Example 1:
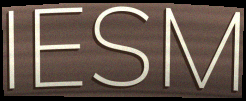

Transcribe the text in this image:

IESM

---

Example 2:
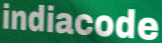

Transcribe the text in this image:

indiacode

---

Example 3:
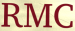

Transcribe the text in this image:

RMC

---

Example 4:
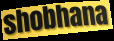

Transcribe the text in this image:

shobhana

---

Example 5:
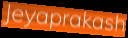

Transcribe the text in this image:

Jeyaprakash